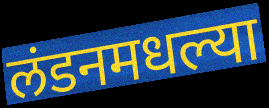
लंडनमधल्या